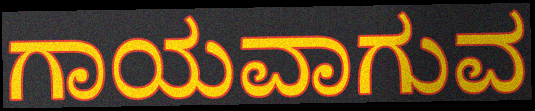
ಗಾಯವಾಗುವ